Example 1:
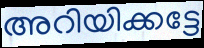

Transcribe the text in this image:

അറിയിക്കട്ടേ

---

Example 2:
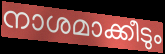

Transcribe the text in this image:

നാശമാക്കീടും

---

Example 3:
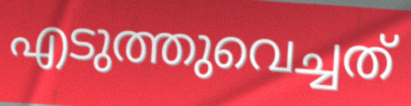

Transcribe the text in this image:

എടുത്തുവെച്ചത്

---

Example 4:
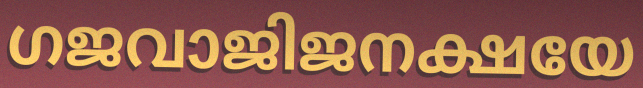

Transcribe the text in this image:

ഗജവാജിജനക്ഷയേ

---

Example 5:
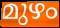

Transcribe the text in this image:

മുഴം